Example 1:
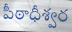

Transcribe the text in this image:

పీఠాధీశ్వర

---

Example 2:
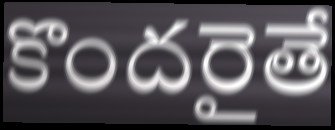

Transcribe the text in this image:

కొందరైతే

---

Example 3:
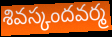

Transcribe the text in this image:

శివస్కందవర్మ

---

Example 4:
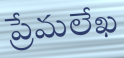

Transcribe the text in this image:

ప్రేమలేఖ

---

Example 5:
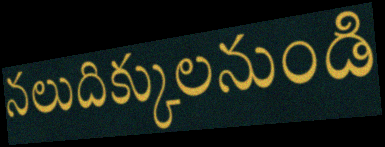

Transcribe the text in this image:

నలుదిక్కులనుండి